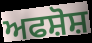
ਅਫਸ਼ੋਸ਼